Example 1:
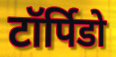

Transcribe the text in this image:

टॉर्पिडो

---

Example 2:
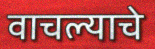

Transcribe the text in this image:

वाचल्याचे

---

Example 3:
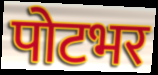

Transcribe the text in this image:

पोटभर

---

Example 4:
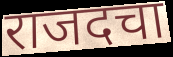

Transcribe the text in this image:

राजदचा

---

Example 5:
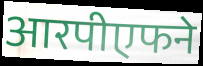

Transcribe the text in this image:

आरपीएफने